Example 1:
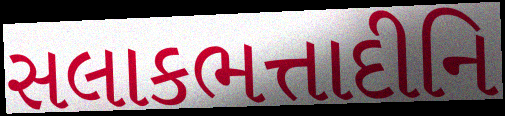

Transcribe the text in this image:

સલાકભત્તાદીનિ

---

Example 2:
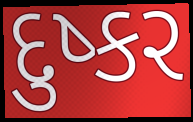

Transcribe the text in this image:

દુષ્કર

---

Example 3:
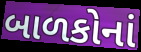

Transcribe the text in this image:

બાળકોનાં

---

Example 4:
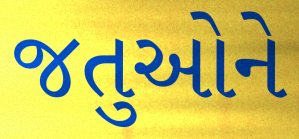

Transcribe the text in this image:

જતુઓને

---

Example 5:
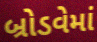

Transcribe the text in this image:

બ્રોડવેમાં